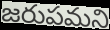
జరుపమని